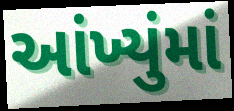
આંખ્યુંમાં